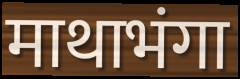
माथाभंगा